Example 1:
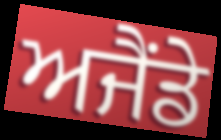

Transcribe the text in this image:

ਅਜੈਂਡੇ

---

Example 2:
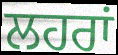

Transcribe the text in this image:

ਲਹਰਾਂ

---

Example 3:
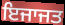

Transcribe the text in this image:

ਇਜਾਜਤ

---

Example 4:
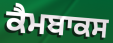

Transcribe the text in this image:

ਕੈਮਬਾਕਸ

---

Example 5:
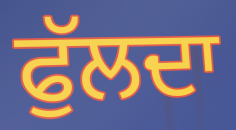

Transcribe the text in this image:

ਫੁੱਲਦਾ